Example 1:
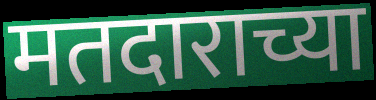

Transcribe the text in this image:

मतदाराच्या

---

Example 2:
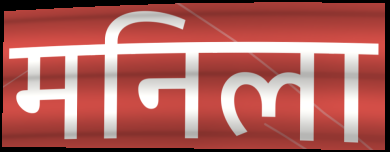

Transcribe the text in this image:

मनिला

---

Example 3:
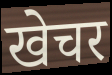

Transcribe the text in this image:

खेचर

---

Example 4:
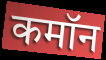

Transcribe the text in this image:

कमॉन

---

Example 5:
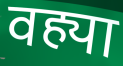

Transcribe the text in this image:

वह्या